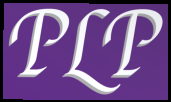
PLP